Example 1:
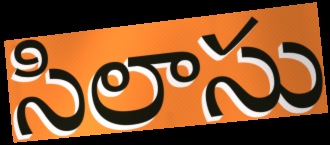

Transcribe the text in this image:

సిలాసు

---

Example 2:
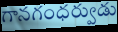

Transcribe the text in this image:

గానగంధర్వుడు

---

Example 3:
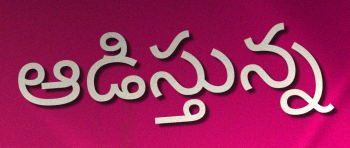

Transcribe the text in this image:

ఆడిస్తున్న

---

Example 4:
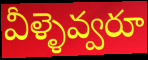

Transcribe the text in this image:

వీళ్ళెవ్వరూ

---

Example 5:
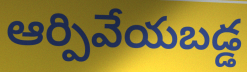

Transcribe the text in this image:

ఆర్పివేయబడ్డ